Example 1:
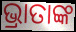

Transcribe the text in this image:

ଭ୍ରାତାଙ୍କ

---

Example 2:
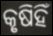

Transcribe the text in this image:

କୃଷିହିଁ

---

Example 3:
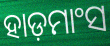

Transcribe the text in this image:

ହାଡ଼ମାଂସ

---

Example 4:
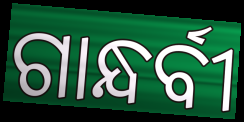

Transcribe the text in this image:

ଗାନ୍ଧର୍ବୀ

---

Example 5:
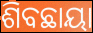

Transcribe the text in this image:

ଶିବଛାୟା